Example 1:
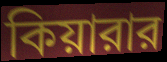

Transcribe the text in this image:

কিয়ারার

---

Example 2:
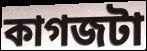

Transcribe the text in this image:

কাগজটা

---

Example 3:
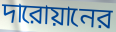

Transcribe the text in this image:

দারোয়ানের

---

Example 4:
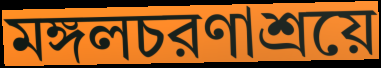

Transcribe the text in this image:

মঙ্গলচরণাশ্রয়ে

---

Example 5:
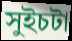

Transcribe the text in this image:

সুইচটা